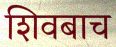
शिवबाच